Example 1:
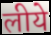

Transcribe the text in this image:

लीये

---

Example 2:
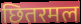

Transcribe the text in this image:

छितरमल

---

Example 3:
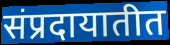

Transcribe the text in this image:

संप्रदायातीत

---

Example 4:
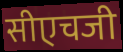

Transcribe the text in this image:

सीएचजी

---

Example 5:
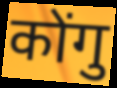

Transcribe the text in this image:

कोंगु